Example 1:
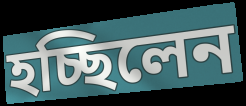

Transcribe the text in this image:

হচ্ছিলেন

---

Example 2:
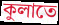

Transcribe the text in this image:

কুলাতে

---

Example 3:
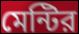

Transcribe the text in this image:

মেন্টির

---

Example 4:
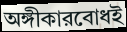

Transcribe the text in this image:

অঙ্গীকারবোধই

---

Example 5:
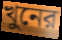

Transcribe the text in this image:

খুনের